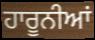
ਹਾਰੂਨੀਆਂ